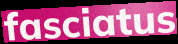
fasciatus